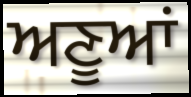
ਅਣੂਆਂ